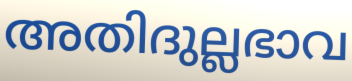
അതിദുല്ലഭാവ